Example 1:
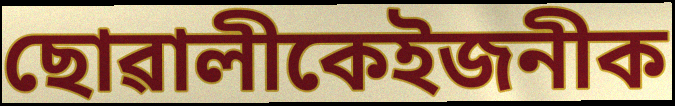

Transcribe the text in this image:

ছোৱালীকেইজনীক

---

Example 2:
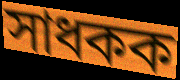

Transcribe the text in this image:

সাধকক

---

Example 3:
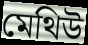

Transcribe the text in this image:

মেথিউ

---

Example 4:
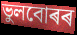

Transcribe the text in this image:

ভুলবোৰৰ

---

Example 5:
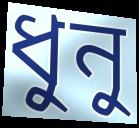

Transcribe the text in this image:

ধুনু